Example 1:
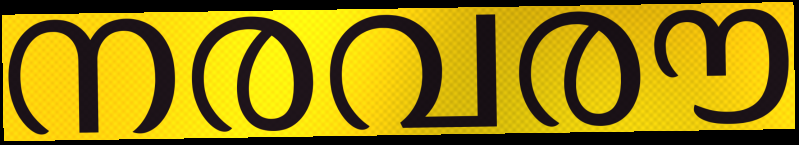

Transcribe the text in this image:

നരവരൗ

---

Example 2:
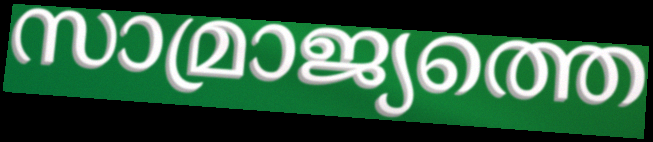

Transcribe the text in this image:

സാമ്രാജ്യത്തെ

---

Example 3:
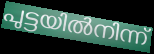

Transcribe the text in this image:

പുട്ടയിൽനിന്ന്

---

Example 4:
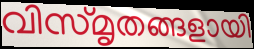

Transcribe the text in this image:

വിസ്മൃതങ്ങളായി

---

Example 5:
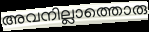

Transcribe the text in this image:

അവനില്ലാത്തൊരു